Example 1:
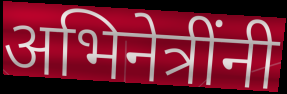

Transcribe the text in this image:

अभिनेत्रींनी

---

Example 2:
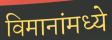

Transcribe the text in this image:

विमानांमध्ये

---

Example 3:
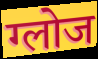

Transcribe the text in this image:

ग्लोज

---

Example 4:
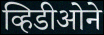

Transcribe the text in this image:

व्हिडीओने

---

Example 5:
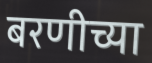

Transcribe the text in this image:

बरणीच्या